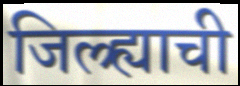
जिल्ह्याची